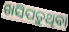
ଖସିପଡ଼ୁଥିବା